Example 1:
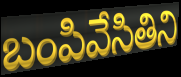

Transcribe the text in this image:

బంపివేసితిని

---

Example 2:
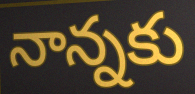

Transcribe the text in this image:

నాన్నకు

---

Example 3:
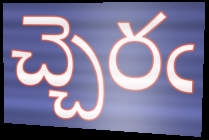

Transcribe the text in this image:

చ్చెరఁ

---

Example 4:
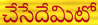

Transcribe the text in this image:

చేసేదేమిటో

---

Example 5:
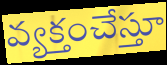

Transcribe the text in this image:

వ్యక్తంచేస్తూ